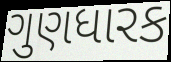
ગુણધારક